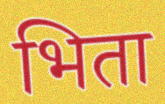
भिता